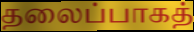
தலைப்பாகத்